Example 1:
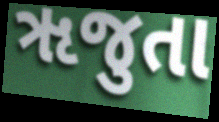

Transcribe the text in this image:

ૠજુતા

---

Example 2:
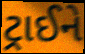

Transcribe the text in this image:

ટ્રાઈને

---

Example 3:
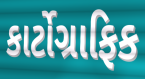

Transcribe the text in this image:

કાર્ટોગ્રાફિક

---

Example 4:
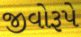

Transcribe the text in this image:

જીવોરૂપે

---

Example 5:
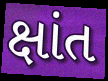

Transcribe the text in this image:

ક્ષાંત